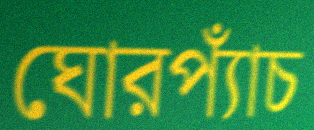
ঘোরপ্যাঁচ